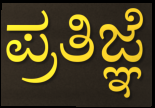
ಪ್ರತಿಜ್ಞೆ